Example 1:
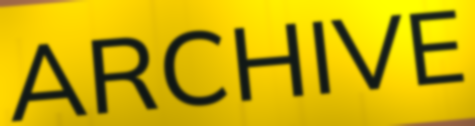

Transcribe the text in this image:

ARCHIVE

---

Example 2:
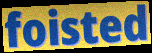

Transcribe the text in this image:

foisted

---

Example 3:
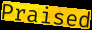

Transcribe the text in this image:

Praised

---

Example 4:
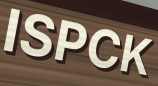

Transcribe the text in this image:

ISPCK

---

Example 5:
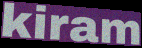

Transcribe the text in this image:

kiram